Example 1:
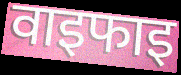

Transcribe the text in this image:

वाइफाइ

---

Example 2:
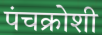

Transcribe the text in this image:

पंचक्रोशी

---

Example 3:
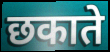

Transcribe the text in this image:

छकाते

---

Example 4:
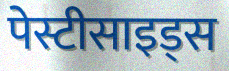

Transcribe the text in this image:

पेस्टीसाइड्स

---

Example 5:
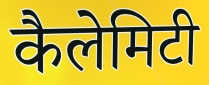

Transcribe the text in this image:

कैलेमिटी